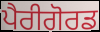
ਪੈਰੀਗੋਰਡ